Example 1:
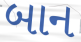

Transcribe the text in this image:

બાન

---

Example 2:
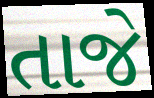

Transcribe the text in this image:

તાજે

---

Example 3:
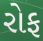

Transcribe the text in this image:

રોફ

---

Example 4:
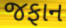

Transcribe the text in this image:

જફાન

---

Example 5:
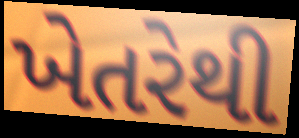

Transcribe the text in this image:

ખેતરેથી